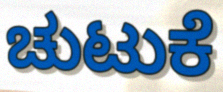
ಚುಟುಕೆ